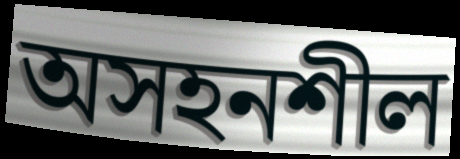
অসহনশীল